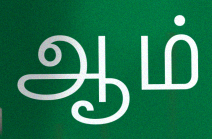
ஆம்